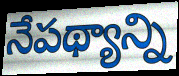
నేపథ్యాన్ని